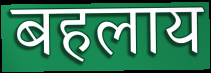
बहलाय